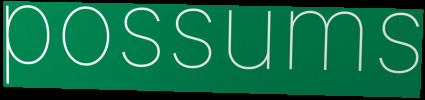
possums